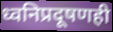
ध्वनिप्रदूषणही